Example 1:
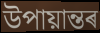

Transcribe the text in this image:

উপায়ান্তৰ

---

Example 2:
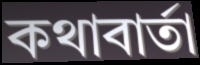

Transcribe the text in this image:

কথাবাৰ্তা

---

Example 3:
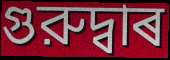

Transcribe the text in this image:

গুৰুদ্বাৰ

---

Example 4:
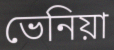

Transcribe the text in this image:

ভেনিয়া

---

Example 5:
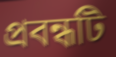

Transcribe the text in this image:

প্ৰবন্ধটি